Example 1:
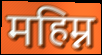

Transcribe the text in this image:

महिम्न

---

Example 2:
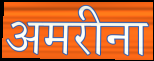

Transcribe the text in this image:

अमरीना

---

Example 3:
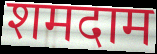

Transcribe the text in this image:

शमदाम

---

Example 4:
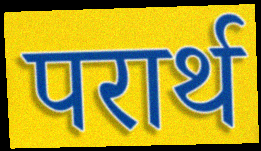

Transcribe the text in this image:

परार्थ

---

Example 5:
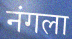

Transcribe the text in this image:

नंगला